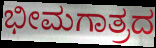
ಭೀಮಗಾತ್ರದ